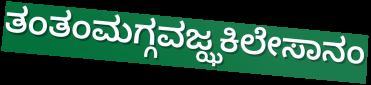
ತಂತಂಮಗ್ಗವಜ್ಝಕಿಲೇಸಾನಂ